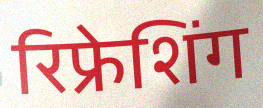
रिफ्रेशिंग